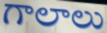
గాలాలు